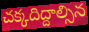
చక్కదిద్దాల్సిన